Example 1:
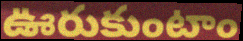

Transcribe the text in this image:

ఊరుకుంటాం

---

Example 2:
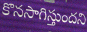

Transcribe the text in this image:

కొనసాగిస్తుందని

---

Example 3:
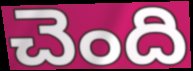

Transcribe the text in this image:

చెంది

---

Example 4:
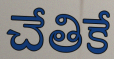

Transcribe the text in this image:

చేతికే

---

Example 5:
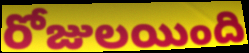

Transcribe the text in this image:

రోజులయింది